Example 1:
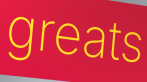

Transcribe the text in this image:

greats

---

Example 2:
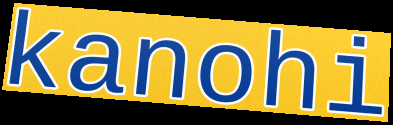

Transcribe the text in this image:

kanohi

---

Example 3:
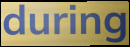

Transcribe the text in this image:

during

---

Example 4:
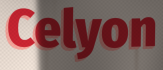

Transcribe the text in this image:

Celyon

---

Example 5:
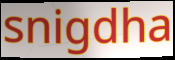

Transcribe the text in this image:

snigdha